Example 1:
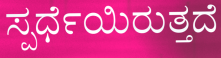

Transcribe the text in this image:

ಸ್ಪರ್ಧೆಯಿರುತ್ತದೆ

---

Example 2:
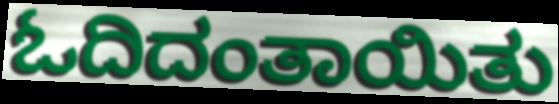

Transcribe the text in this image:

ಓದಿದಂತಾಯಿತು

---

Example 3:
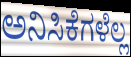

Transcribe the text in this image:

ಅನಿಸಿಕೆಗಳೆಲ್ಲ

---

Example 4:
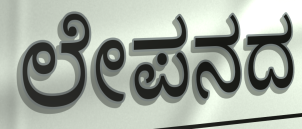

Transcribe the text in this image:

ಲೇಪನದ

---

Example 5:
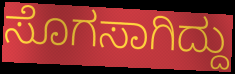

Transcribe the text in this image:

ಸೊಗಸಾಗಿದ್ದು